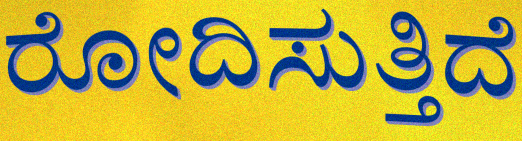
ರೋದಿಸುತ್ತಿದೆ